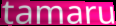
tamaru